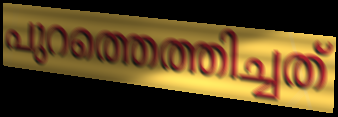
പുറത്തെത്തിച്ചത്